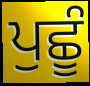
ਪੁਛੂੰ